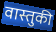
वास्तुकी